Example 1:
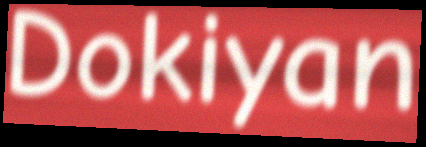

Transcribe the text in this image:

Dokiyan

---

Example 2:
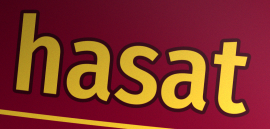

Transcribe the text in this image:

hasat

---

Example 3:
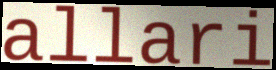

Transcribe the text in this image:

allari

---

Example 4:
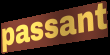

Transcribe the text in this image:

passant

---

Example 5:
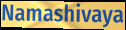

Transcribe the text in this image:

Namashivaya